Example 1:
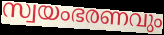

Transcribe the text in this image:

സ്വയംഭരണവും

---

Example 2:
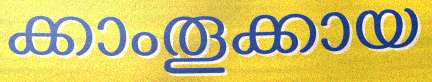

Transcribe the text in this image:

ക്കാംതൂക്കായ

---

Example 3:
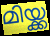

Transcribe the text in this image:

മിയ്ക്ക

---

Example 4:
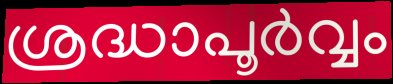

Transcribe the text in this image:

ശ്രദ്ധാപൂർവ്വം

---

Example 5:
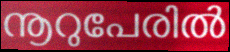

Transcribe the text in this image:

നൂറുപേരിൽ